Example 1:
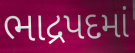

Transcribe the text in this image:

ભાદ્રપદમાં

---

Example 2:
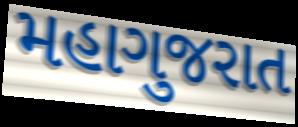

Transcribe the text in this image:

મહાગુજરાત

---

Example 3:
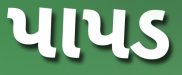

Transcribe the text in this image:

પાપડ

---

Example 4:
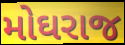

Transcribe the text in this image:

મોઘરાજ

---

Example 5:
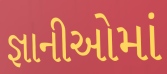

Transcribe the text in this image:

જ્ઞાનીઓમાં